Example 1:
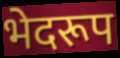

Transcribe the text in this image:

भेदरूप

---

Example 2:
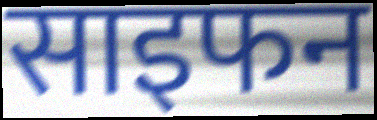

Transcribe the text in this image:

साइफन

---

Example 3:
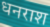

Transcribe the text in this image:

धनराश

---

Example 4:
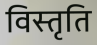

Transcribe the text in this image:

विस्तृति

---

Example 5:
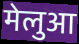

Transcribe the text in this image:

मेलुआ